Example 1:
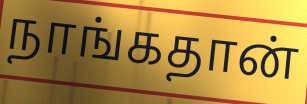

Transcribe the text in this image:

நாங்கதான்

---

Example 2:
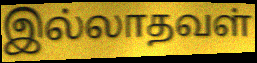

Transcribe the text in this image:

இல்லாதவள்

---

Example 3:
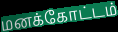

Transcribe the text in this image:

மனக்கோட்டம்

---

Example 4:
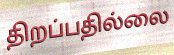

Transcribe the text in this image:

திறப்பதில்லை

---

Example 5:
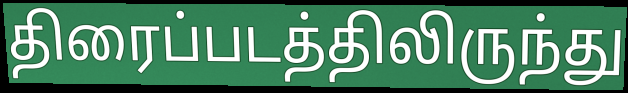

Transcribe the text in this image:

திரைப்படத்திலிருந்து